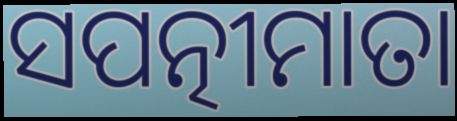
ସପତ୍ନୀମାତା